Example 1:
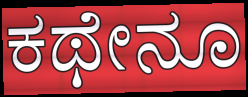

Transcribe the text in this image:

ಕಥೇನೂ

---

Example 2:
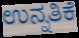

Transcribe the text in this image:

ಉನ್ನತಿಕೆ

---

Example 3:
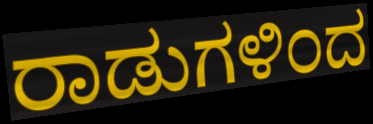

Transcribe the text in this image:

ರಾಡುಗಳಿಂದ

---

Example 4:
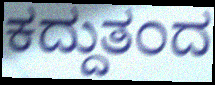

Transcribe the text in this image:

ಕದ್ದುತಂದ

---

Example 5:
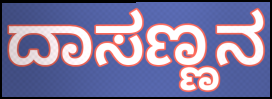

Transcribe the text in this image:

ದಾಸಣ್ಣನ